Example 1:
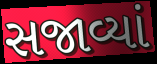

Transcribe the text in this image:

સજાવ્યાં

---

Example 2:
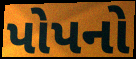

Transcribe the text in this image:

પોપનો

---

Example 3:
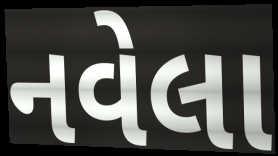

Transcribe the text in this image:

નવેલા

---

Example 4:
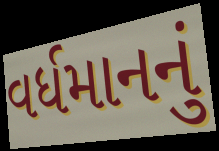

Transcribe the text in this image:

વર્ધમાનનું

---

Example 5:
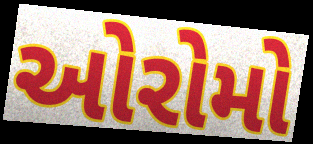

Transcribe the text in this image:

ઓરોમો